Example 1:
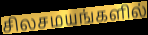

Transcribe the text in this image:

சிலசமயங்களில்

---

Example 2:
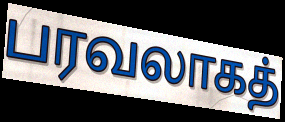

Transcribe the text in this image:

பரவலாகத்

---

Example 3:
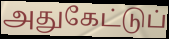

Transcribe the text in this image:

அதுகேட்டுப்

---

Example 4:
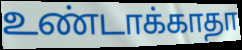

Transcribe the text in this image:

உண்டாக்காதா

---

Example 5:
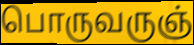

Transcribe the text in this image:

பொருவருஞ்